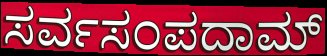
ಸರ್ವಸಂಪದಾಮ್